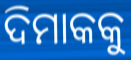
ଦିମାକକୁ